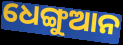
ଧେଙ୍ଗୁଆନ